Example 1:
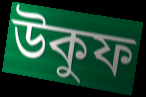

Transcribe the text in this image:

উকুফ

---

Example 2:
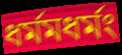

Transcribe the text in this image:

ধর্মমধর্মং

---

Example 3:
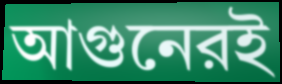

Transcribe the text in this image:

আগুনেরই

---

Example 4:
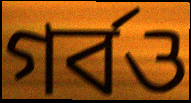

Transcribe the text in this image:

গর্বও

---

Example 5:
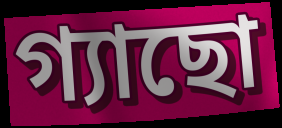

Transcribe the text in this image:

গ্যাছো